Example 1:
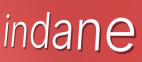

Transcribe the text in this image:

indane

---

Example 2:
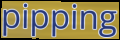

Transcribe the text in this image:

pipping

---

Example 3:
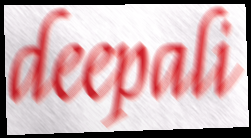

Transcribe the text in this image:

deepali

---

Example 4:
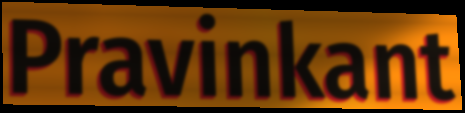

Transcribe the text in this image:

Pravinkant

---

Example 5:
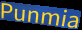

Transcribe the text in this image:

Punmia